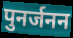
पुनर्जनन